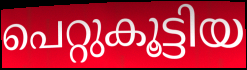
പെറ്റുകൂട്ടിയ